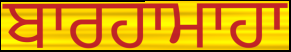
ਬਾਰਹਾਮਾਹਾ